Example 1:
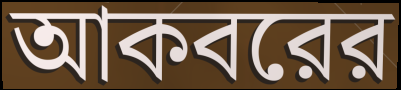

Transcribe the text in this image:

আকবরের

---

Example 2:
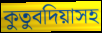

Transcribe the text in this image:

কুতুবদিয়াসহ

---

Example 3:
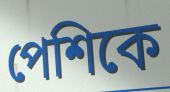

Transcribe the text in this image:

পেশিকে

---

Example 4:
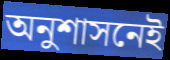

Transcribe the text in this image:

অনুশাসনেই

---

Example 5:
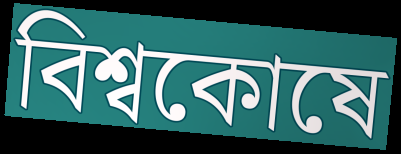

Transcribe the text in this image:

বিশ্বকোষে